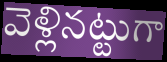
వెళ్లినట్టుగా